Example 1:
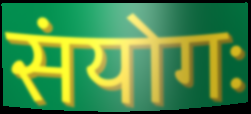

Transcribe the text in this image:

संयोगः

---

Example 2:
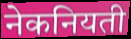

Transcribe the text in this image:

नेकनियती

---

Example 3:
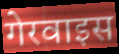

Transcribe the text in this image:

गेरवाइस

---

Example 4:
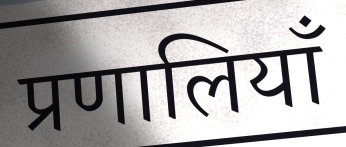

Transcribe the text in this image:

प्रणालियाँ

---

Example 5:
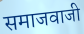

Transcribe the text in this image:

समाजवाजी